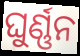
ଘୁର୍ଣ୍ଣନ